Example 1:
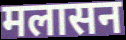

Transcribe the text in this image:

मलासन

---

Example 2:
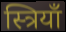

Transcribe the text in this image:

स्त्रियाँ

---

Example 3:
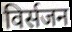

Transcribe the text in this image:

विर्सजन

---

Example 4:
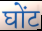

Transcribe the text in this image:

घोंट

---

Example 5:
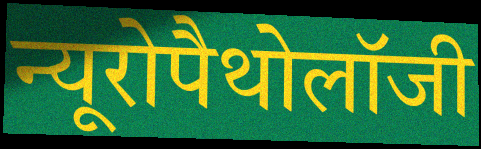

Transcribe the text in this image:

न्यूरोपैथोलॉजी